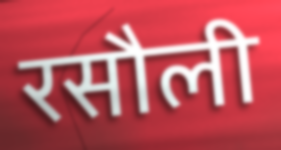
रसौली